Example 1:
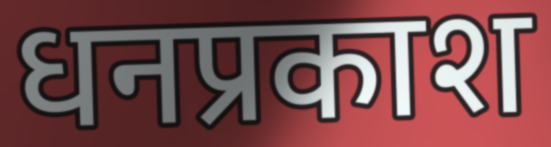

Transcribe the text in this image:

धनप्रकाश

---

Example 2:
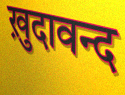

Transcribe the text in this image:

ख़ुदावन्द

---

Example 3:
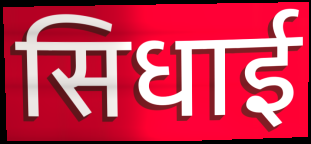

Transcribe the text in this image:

सिधाई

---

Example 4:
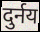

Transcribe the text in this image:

दुर्नय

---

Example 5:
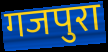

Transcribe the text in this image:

गजपुरा